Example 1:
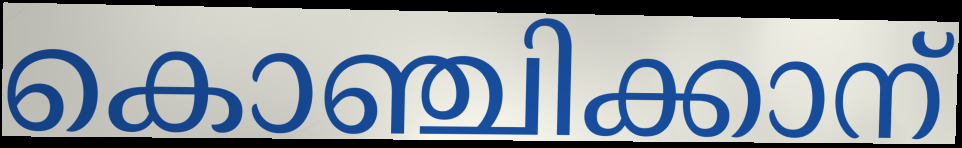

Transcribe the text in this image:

കൊഞ്ചിക്കാന്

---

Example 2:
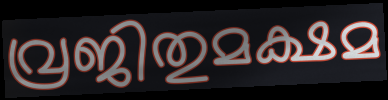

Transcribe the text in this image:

വ്രജിതുമക്ഷമ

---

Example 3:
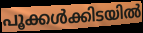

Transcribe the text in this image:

പൂക്കൾക്കിടയിൽ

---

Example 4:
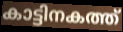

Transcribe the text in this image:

കാട്ടിനകത്ത്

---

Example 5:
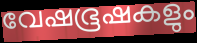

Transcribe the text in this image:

വേഷഭൂഷകളും